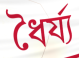
ধৈর্য্য